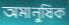
অমানুষিক